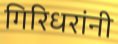
गिरिधरांनी